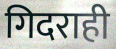
गिदराही